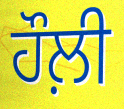
ਹੌਲ਼ੀ